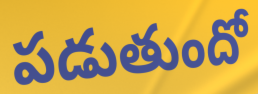
పడుతుందో